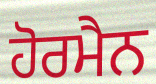
ਹੋਰਮੈਨ